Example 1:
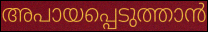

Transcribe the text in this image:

അപായപ്പെടുത്താൻ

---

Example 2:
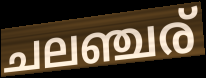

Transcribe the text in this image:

ചലഞ്ചര്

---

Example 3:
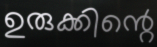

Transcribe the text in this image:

ഉരുക്കിന്റെ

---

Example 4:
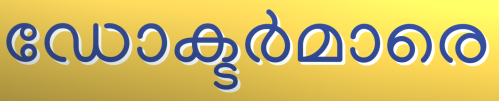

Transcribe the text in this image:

ഡോക്ടർമാരെ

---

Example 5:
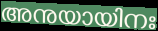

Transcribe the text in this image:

അനുയായിനഃ